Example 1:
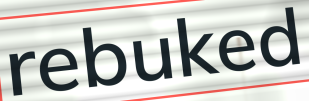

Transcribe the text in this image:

rebuked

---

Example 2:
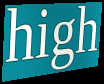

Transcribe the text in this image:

high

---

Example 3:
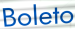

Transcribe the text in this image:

Boleto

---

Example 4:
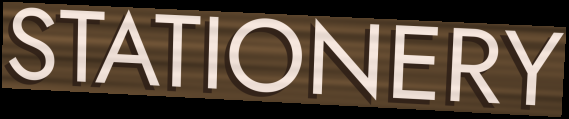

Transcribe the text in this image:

STATIONERY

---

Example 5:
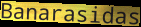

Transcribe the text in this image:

Banarasidas